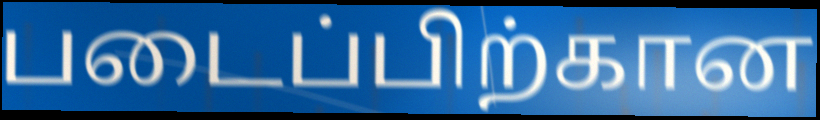
படைப்பிற்கான